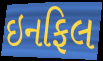
ઇનફિલ